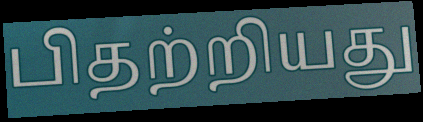
பிதற்றியது